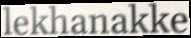
lekhanakke